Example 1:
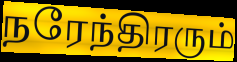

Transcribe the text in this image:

நரேந்திரரும்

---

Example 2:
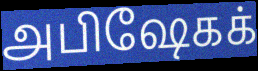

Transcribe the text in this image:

அபிஷேகக்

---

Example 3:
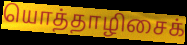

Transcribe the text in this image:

யொத்தாழிசைக்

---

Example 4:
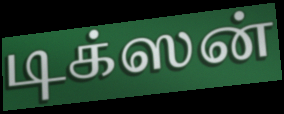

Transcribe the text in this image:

டிக்ஸன்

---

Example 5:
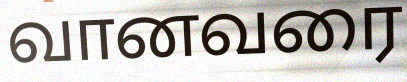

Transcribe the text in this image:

வானவரை